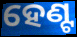
ହେଣ୍ଟ